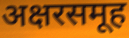
अक्षरसमूह